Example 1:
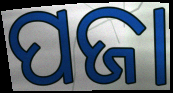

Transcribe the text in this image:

ପଜା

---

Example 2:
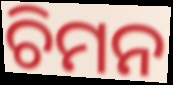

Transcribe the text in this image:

ଚିମନ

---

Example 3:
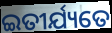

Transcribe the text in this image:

ଇତୀର୍ଯ୍ୟତେ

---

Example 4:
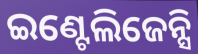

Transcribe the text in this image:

ଇଣ୍ଟେଲିଜେନ୍ସି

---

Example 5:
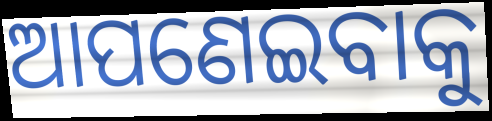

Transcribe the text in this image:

ଆପଣେଇବାକୁ